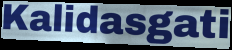
Kalidasgati